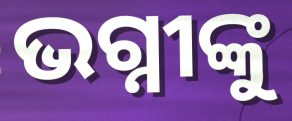
ଭଗ୍ନୀଙ୍କୁ